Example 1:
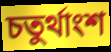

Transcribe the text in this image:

চতুৰ্থাংশ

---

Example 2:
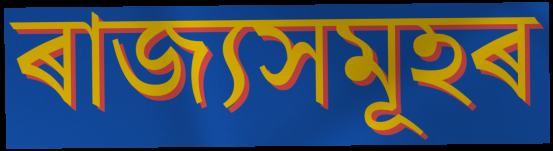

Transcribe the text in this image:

ৰাজ্যসমূহৰ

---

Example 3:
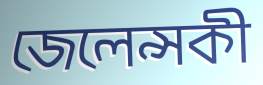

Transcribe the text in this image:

জেলেন্সকী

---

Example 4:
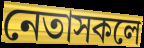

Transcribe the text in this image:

নেতাসকলে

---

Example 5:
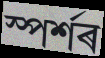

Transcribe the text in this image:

স্পৰ্শৰ